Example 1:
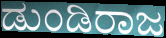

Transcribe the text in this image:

ಡುಂಡಿರಾಜ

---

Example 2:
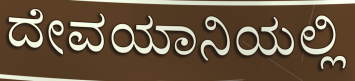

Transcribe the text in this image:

ದೇವಯಾನಿಯಲ್ಲಿ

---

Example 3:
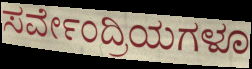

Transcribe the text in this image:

ಸರ್ವೇಂದ್ರಿಯಗಳೂ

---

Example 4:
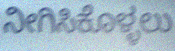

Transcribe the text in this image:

ನೀಗಿಸಿಕೊಳ್ಳಲು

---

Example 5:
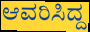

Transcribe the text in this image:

ಆವರಿಸಿದ್ದ